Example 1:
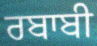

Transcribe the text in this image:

ਰਬਾਬੀ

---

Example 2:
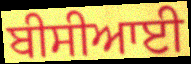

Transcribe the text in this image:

ਬੀਸੀਆਈ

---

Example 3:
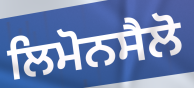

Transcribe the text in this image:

ਲਿਮੋਨਸੈਲੋ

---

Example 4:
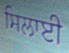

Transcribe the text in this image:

ਸਿਲਾਈ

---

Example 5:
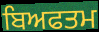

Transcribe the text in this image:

ਬਿਅਫਤਮ